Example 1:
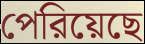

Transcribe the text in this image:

পেরিয়েছে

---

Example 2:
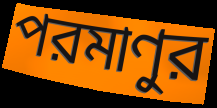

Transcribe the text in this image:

পরমাণুর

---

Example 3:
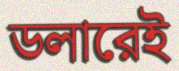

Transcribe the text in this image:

ডলারেই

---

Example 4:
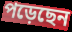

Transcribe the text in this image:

পড়েছেন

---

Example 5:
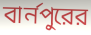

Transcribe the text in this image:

বার্নপুরের